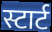
स्टार्ट